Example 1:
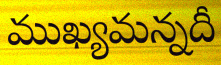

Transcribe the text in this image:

ముఖ్యమన్నదీ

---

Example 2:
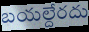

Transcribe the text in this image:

బయల్దేరదు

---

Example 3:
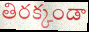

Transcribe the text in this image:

తిరక్కండా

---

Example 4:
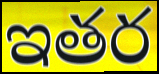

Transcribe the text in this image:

ఇతర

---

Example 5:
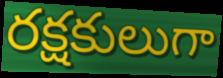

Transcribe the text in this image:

రక్షకులుగా